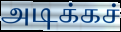
அடிக்கச்